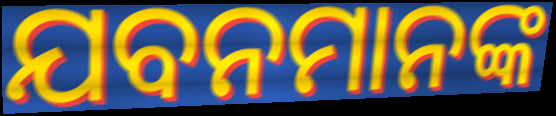
ଯବନମାନଙ୍କ